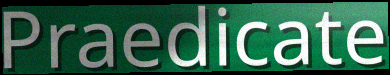
Praedicate